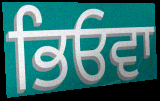
ਭਿਓਵਾ